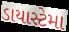
ડાયાસ્ટેમા